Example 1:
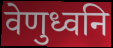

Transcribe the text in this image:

वेणुध्वनि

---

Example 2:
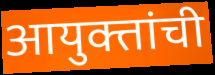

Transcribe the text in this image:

आयुक्तांची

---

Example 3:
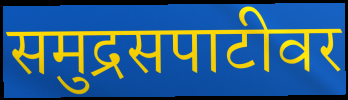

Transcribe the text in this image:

समुद्रसपाटीवर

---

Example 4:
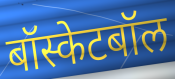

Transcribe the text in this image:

बॉस्केटबॉल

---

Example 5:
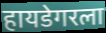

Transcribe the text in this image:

हायडेगरला